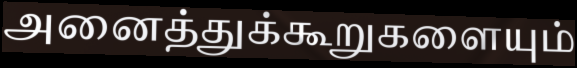
அனைத்துக்கூறுகளையும்